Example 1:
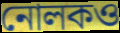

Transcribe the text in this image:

নোলকও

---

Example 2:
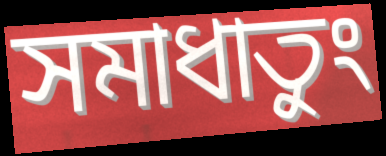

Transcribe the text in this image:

সমাধাতুং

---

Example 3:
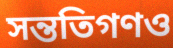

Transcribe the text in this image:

সন্ততিগণও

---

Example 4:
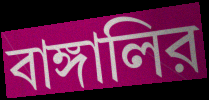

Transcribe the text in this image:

বাঙ্গালির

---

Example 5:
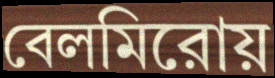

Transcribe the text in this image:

বেলমিরোয়